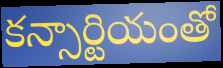
కన్సార్టియంతో